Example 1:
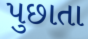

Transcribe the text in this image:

પુછાતા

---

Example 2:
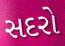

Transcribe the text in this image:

સદરો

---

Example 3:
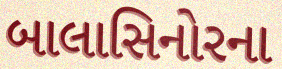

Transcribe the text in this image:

બાલાસિનોરના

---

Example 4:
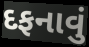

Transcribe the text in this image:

દફનાવું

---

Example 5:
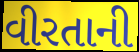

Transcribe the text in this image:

વીરતાની